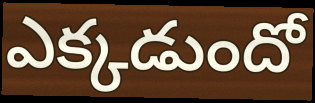
ఎక్కడుందో